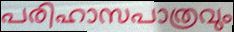
പരിഹാസപാത്രവും